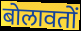
बोलावतों